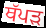
ਥੱਪੜ